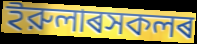
ইৰুলাৰসকলৰ